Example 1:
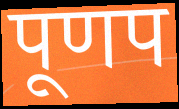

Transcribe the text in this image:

पूणप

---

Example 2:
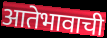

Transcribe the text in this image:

आतेभावाची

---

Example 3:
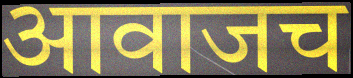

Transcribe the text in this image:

आवाजच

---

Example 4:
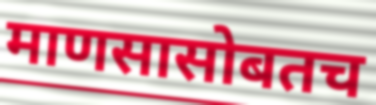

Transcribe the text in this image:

माणसासोबतच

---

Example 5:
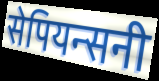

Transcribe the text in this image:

सेपियन्सनी